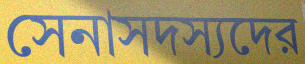
সেনাসদস্যদের